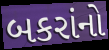
બકરાંનો